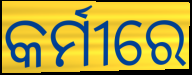
କର୍ମୀରେ